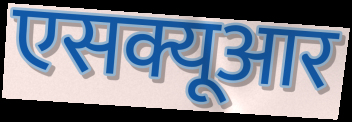
एसक्यूआर